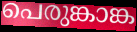
പെരുങ്കാങ്ക